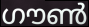
ഗൗൺ